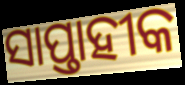
ସାପ୍ତାହୀକ